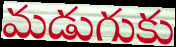
మడుగుకు